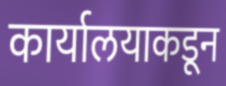
कार्यालयाकडून